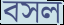
বসল